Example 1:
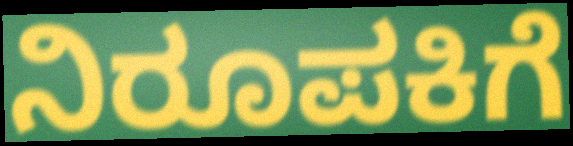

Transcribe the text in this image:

ನಿರೂಪಕಿಗೆ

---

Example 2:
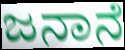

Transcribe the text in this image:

ಜನಾನೆ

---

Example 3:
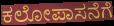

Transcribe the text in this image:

ಕಲೋಪಾಸನೆಗೆ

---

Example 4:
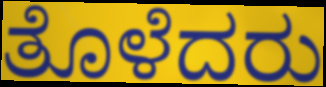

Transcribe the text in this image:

ತೊಳೆದರು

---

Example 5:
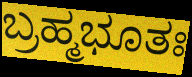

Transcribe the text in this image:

ಬ್ರಹ್ಮಭೂತಃ